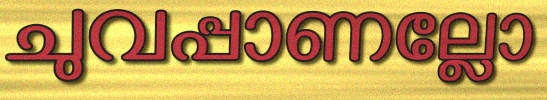
ചുവപ്പാണല്ലോ